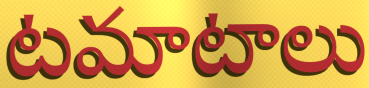
టమాటాలు